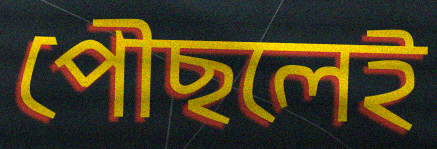
পৌছলেই